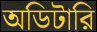
অডিটারি